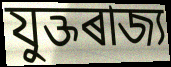
যুক্তৰাজ্য